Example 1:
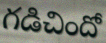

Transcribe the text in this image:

గడిచిందో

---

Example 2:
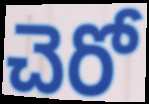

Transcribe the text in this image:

చెరో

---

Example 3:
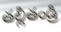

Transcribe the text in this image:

తల్లీతండ్రి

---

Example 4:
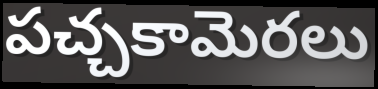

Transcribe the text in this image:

పచ్చకామెరలు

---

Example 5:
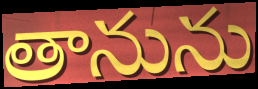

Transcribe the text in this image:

తానును